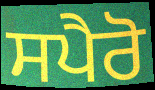
ਸਪੈਰੋ